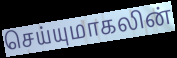
செய்யுமாகலின்